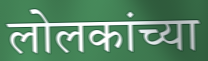
लोलकांच्या